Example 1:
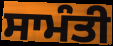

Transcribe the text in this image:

ਸਾਮੰਤੀ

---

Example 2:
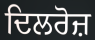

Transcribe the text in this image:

ਦਿਲਰੋਜ਼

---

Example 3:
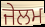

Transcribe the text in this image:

ਜੇਲਮ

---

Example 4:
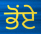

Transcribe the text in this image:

ਭੋਂਏ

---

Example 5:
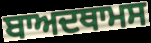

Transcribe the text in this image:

ਬਾਅਦਥਾਮਸ